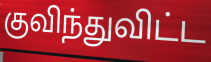
குவிந்துவிட்ட